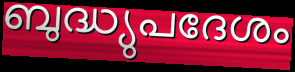
ബുദ്ധ്യുപദേശം